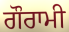
ਗੌਰਾਮੀ